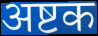
अष्टक